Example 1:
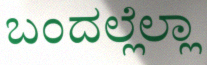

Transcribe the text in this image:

ಬಂದಲ್ಲೆಲ್ಲಾ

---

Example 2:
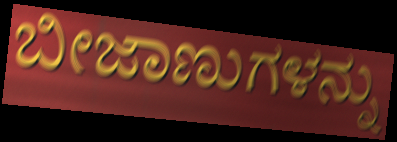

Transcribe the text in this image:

ಬೀಜಾಣುಗಳನ್ನು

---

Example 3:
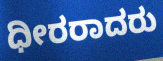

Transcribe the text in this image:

ಧೀರರಾದರು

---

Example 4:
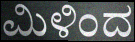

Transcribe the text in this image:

ಮಿಳಿಂದ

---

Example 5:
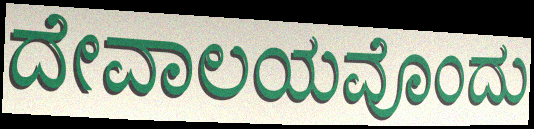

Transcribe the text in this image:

ದೇವಾಲಯವೊಂದು